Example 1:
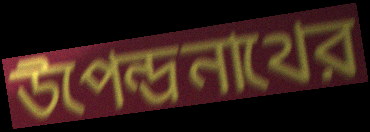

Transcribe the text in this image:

উপেন্দ্রনাথের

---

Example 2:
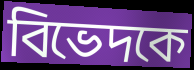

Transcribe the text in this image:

বিভেদকে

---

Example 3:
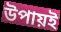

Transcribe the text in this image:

উপায়ই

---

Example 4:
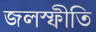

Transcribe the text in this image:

জলস্ফীতি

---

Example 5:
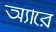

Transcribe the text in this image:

অ্যারে